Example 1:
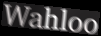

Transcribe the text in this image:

Wahloo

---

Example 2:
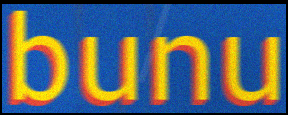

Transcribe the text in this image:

bunu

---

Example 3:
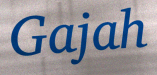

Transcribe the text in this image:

Gajah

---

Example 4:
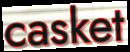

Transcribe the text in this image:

casket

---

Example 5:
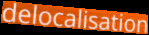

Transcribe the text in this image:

delocalisation